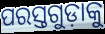
ପରସ୍ତଗୁଡ଼ାକୁ